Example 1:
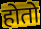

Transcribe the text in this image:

होतो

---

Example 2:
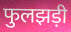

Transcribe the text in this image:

फुलझड़ी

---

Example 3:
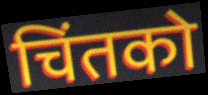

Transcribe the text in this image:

चिंतको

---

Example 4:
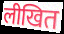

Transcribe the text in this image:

लीखित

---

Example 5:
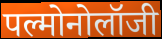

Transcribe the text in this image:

पल्मोनोलॉजी